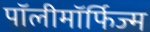
पॉलीमॉर्फिज्म